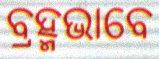
ବ୍ରହ୍ମଭାବେ